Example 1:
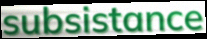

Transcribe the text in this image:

subsistance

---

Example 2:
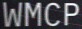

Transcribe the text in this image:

WMCP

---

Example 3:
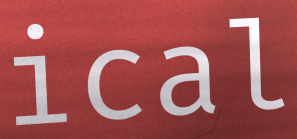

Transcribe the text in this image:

ical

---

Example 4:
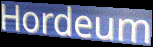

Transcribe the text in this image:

Hordeum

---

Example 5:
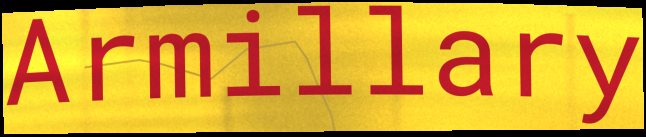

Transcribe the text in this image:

Armillary